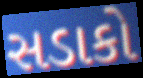
સડાકો